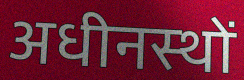
अधीनस्थों